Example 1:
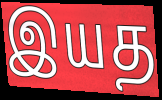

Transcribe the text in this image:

இயத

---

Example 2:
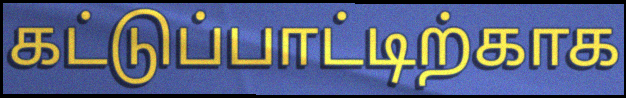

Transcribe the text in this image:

கட்டுப்பாட்டிற்காக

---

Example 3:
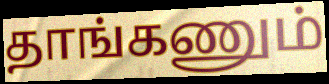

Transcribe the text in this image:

தாங்கணும்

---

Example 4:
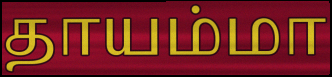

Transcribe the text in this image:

தாயம்மா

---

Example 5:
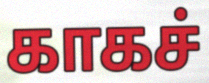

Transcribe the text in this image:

காகச்